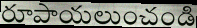
రూపాయలుంచండి